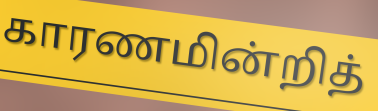
காரணமின்றித்